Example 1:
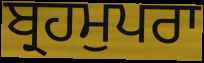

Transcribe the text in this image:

ਬ੍ਰਹਮੁਪਰਾ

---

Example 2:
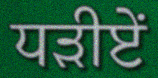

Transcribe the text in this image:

ਧੜੀਏਂ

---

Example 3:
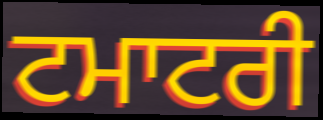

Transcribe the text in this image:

ਟਮਾਟਰੀ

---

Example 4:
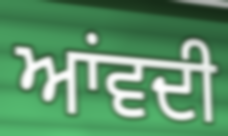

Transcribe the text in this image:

ਆਂਵਦੀ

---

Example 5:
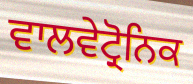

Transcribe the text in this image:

ਵਾਲਵੇਟ੍ਰੋਨਿਕ